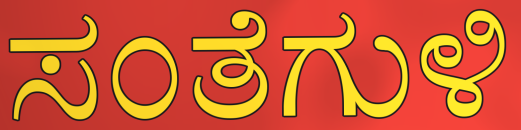
ಸಂತೆಗುಳಿ